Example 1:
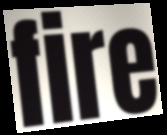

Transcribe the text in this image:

fire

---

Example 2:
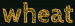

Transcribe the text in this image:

wheat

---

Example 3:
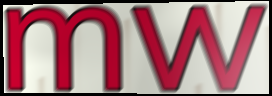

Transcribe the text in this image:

mw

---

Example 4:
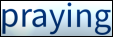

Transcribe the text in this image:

praying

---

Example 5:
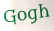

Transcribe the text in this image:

Gogh